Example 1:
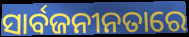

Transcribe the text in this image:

ସାର୍ବଜନୀନତାରେ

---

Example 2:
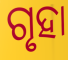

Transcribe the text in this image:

ଗୃହା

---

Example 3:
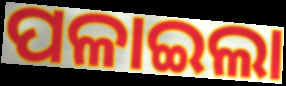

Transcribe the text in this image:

ପଳାଇଲା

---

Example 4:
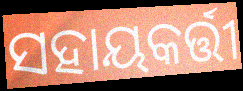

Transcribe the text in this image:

ସହାୟକର୍ତ୍ତୀ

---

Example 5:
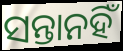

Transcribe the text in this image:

ସନ୍ତାନହିଁ